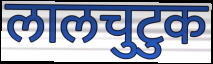
लालचुटुक